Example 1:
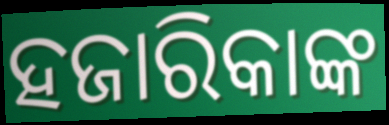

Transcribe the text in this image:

ହଜାରିକାଙ୍କ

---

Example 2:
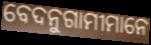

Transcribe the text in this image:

ବେଦନୁଗାମୀମାନେ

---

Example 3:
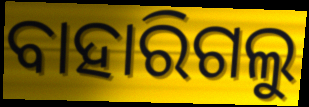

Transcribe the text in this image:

ବାହାରିଗଲୁ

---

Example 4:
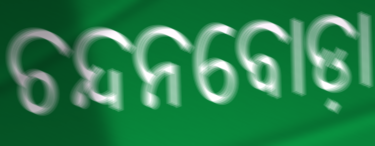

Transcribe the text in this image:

ଚନ୍ଦନବୋଡ଼ା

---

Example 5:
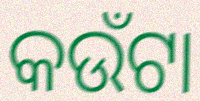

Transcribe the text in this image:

କଉଁଟା